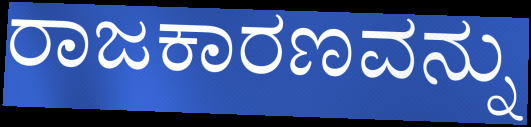
ರಾಜಕಾರಣವನ್ನು